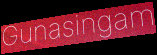
Gunasingam